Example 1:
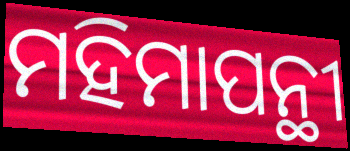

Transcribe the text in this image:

ମହିମାପନ୍ଥୀ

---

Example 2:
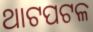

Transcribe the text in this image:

ଥାଟପଟଳ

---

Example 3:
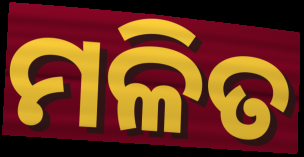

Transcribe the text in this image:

ମଳିତ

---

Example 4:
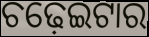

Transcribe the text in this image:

ଚଢ଼େଇଟାର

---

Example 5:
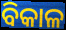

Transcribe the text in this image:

ବିକାଳ